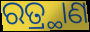
ରତ୍ର୍ଥାଣ